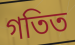
গতিত